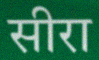
सीरा